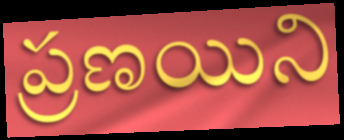
ప్రణయిని